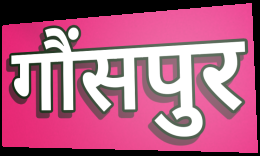
गौंसपुर